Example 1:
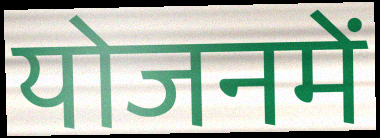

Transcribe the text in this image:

योजनमें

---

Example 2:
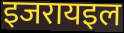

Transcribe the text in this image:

इजरायइल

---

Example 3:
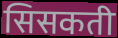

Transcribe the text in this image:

सिसकती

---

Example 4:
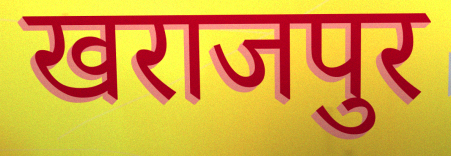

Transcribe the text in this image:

खराजपुर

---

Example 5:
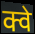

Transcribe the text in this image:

क्वे